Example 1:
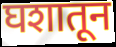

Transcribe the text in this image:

घशातून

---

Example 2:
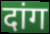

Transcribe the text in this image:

दांग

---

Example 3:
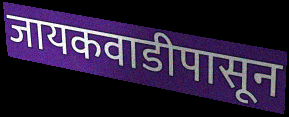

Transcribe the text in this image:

जायकवाडीपासून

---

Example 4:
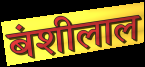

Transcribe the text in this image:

बंशीलाल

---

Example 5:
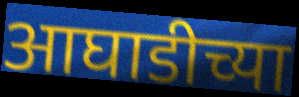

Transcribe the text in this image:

आघाडीच्‍या